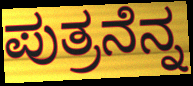
ಪುತ್ರನೆನ್ನ